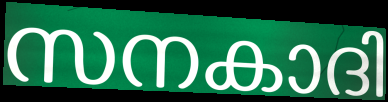
സനകാദി